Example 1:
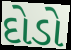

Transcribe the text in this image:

દોડો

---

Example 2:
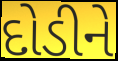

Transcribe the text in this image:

દોડીને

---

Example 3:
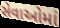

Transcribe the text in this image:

સેવાઓમાં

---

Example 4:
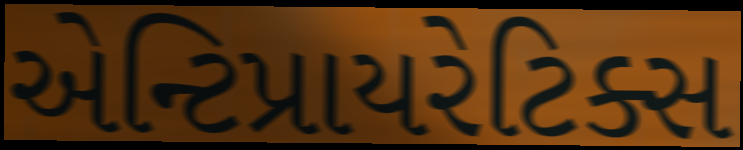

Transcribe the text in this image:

એન્ટિપ્રાયરેટિક્સ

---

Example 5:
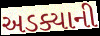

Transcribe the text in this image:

અડક્યાની